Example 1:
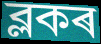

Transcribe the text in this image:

ব্লকৰ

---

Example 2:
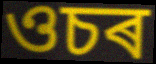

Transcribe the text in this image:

ওচৰ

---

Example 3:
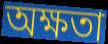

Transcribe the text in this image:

অক্ষতা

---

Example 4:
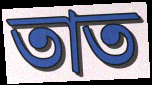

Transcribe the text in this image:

তাত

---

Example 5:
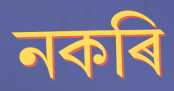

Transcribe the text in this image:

নকৰি